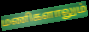
மணிகளாலும்